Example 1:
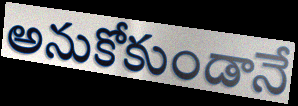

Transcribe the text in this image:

అనుకోకుండానే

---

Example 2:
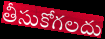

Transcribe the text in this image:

తీసుకోగలదు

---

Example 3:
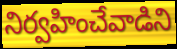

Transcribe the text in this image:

నిర్వహించేవాడిని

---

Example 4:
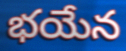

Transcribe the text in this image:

భయేన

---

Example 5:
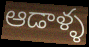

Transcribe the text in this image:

ఆడాళ్ళ